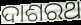
ଦାଶରଥ